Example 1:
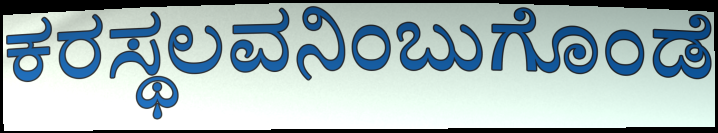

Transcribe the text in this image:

ಕರಸ್ಥಲವನಿಂಬುಗೊಂಡೆ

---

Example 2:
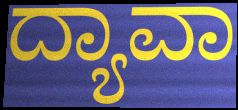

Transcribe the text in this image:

ದ್ಯಾವಾ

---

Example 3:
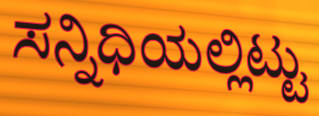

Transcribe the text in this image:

ಸನ್ನಿಧಿಯಲ್ಲಿಟ್ಟು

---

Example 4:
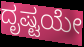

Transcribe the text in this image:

ದೃಷ್ಟಯೇ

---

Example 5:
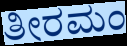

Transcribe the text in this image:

ತೀರಮಂ